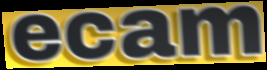
ecam